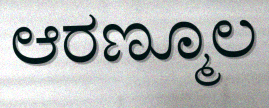
ಆರಣ್ಮೂಲ